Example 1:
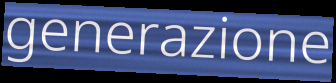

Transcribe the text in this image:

generazione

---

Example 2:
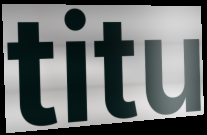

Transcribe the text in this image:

titu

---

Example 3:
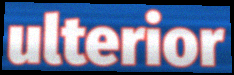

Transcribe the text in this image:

ulterior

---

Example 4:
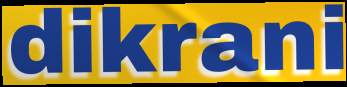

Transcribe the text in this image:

dikrani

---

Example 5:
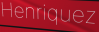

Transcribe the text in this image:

Henriquez